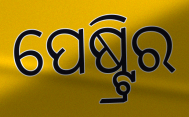
ପେଷ୍ଟ୍ରିର